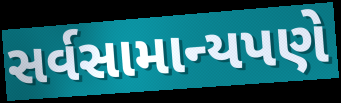
સર્વસામાન્યપણે